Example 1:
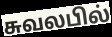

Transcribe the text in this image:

சுவலபில்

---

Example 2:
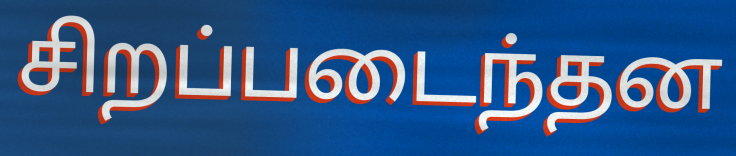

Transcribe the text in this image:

சிறப்படைந்தன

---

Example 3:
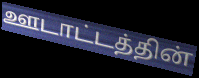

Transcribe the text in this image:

ஊடாட்டத்தின்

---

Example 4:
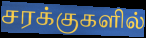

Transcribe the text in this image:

சரக்குகளில்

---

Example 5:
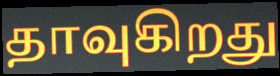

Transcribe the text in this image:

தாவுகிறது